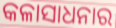
କଳାସାଧନାର